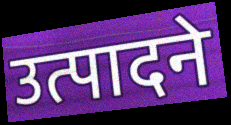
उत्पादने